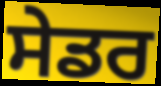
ਸੇਡਰ